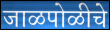
जाळपोळीचे